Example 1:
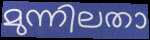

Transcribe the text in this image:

മുന്നിലതാ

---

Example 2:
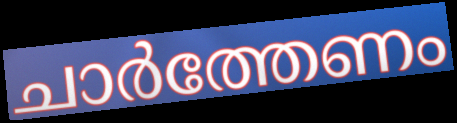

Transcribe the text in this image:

ചാർത്തേണം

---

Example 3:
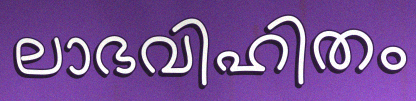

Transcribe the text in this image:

ലാഭവിഹിതം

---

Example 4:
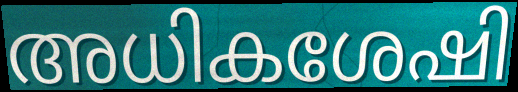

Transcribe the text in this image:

അധികശേഷി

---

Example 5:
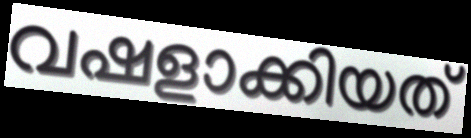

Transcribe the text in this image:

വഷളാക്കിയത്